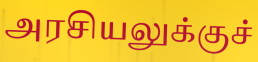
அரசியலுக்குச்